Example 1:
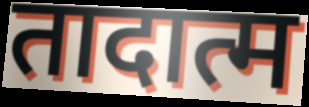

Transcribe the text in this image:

तादात्म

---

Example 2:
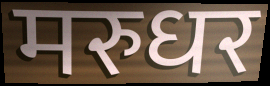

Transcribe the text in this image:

मरुधर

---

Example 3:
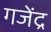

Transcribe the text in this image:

गजेंद्र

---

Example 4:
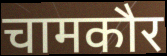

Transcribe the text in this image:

चामकौर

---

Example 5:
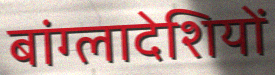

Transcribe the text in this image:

बांग्लादेशियों